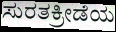
ಸುರತಕ್ರೀಡೆಯ